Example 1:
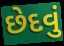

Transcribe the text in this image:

છેદવું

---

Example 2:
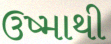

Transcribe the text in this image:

ઉષ્માથી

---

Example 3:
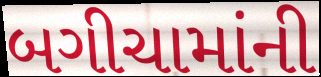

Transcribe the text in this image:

બગીચામાંની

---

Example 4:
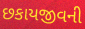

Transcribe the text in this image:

છકાયજીવની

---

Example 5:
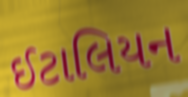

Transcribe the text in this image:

ઈટાલિયન